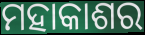
ମହାକାଶର